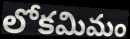
లోకమిమం